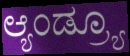
ಆ್ಯಂಡ್ರ್ಯೂ